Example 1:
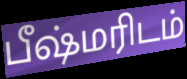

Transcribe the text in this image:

பீஷ்மரிடம்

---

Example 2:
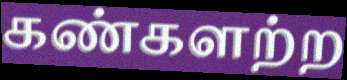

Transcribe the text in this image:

கண்களற்ற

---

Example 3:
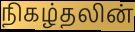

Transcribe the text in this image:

நிகழ்தலின்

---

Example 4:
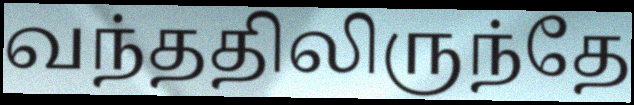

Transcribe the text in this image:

வந்ததிலிருந்தே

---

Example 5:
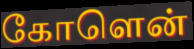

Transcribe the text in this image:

கோளென்